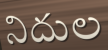
నిదుల